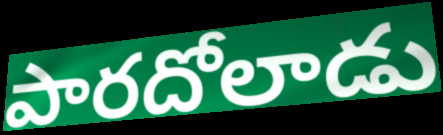
పారదోలాడు